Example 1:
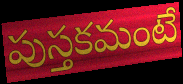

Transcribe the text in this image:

పుస్తకమంటే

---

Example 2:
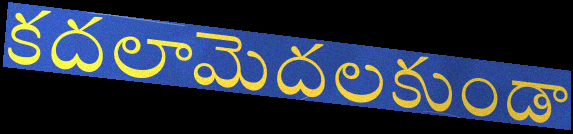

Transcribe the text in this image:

కదలామెదలకుండా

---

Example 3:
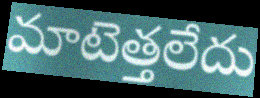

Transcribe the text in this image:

మాటెత్తలేదు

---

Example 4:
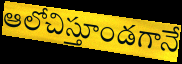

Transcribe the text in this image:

ఆలోచిస్తూండగానే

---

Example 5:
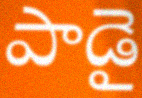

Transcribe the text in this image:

పాడై